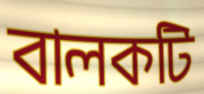
বালকটি